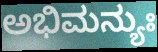
ಅಭಿಮನ್ಯುಃ